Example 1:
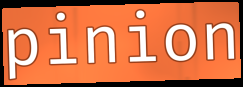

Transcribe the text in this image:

pinion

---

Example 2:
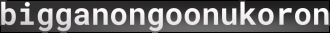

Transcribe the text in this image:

bigganongoonukoron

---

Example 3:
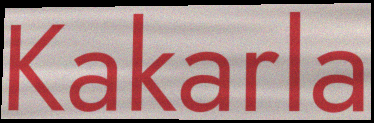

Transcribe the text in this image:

Kakarla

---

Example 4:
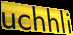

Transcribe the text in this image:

uchhli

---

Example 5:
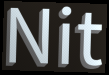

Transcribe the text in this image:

Nit